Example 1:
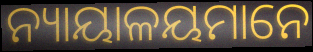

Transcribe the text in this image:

ନ୍ୟାୟାଳୟମାନେ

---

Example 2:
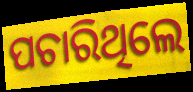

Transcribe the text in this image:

ପଚାରିଥିଲେ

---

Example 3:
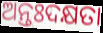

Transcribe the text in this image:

ଅନ୍ତଃଦକ୍ଷତା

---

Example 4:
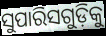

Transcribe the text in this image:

ସୁପାରିସଗୁଡ଼ିକୁ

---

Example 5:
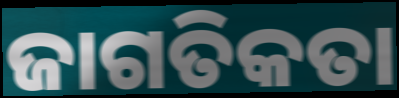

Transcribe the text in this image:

ଜାଗତିକତା